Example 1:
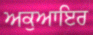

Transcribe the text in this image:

ਅਕੁਆਇਰ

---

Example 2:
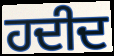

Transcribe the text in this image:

ਹਦੀਦ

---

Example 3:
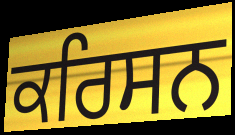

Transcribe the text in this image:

ਕਰਿਸਨ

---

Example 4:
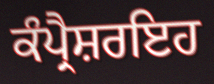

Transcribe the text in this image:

ਕੰਪ੍ਰੈਸ਼ਰਇਹ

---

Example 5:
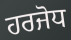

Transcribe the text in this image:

ਹਰਜੋਧ